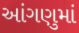
આંગણુમાં